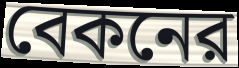
বেকনের